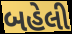
બહેલી